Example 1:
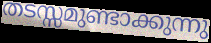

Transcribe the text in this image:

തടസ്സമുണ്ടാക്കുന്നു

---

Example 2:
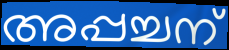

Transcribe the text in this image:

അപ്പച്ചന്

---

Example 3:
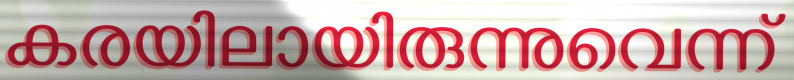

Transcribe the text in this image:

കരയിലായിരുന്നുവെന്ന്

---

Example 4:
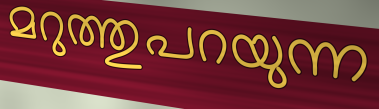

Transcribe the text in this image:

മറുത്തുപറയുന്ന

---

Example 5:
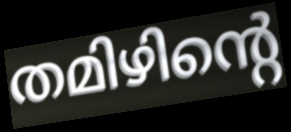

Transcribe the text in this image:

തമിഴിന്റെ